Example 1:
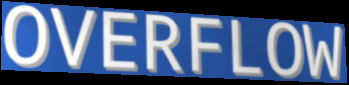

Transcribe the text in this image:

OVERFLOW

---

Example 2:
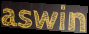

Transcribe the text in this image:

aswin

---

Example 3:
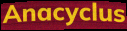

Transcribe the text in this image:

Anacyclus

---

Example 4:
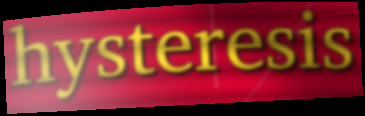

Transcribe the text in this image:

hysteresis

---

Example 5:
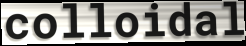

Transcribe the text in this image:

colloidal